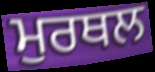
ਮੁਰਥਲ